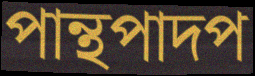
পান্থপাদপ